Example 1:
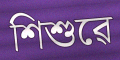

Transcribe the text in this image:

শিশুৱে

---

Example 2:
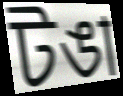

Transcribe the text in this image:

টঙা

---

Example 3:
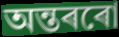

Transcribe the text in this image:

অন্তৰৰো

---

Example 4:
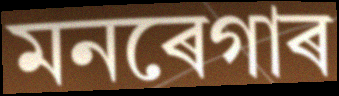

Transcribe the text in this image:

মনৰেগাৰ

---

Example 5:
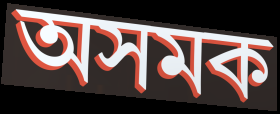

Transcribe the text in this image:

অসমক